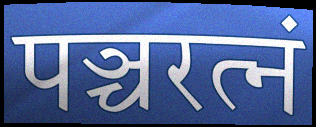
पञ्चरत्नं